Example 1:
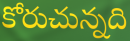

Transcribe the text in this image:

కోరుచున్నది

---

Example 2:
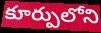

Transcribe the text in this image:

కూర్పులోని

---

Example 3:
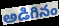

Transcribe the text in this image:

అడిగినం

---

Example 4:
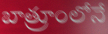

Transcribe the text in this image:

బాత్రూంలోనే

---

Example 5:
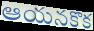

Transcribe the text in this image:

ఆయనకొక